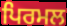
ਪਿਰਮਲ